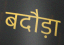
बदौड़ा